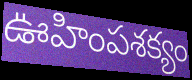
ఊహింపశక్యం